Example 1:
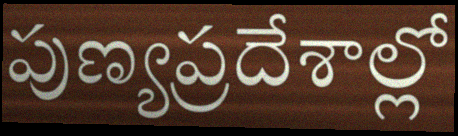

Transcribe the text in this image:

పుణ్యప్రదేశాల్లో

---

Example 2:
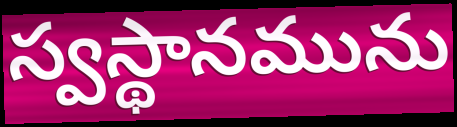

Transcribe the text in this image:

స్వస్థానమును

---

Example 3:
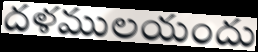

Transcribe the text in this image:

దళములయందు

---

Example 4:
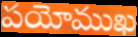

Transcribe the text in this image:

పయోముఖ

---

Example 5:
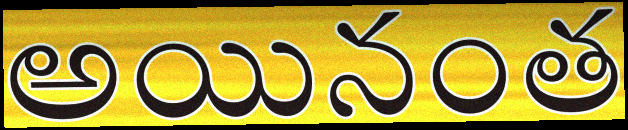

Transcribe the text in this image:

అయినంత